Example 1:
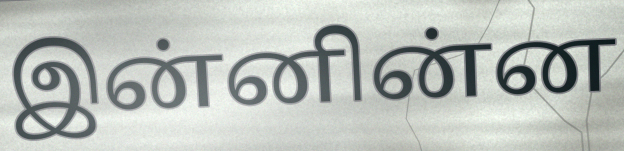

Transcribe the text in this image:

இன்னின்ன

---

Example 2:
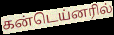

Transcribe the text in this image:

கன்டெய்னரில்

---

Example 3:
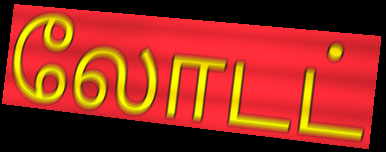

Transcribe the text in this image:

லோடட்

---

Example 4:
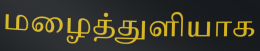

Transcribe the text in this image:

மழைத்துளியாக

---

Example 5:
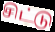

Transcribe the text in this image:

சிட்டு